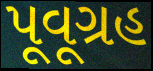
પૂવૂગ્રહ